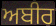
ਅਬੀਰ